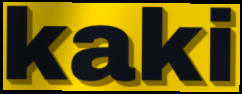
kaki